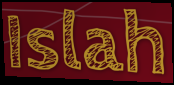
Islah